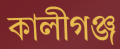
কালীগঞ্জ